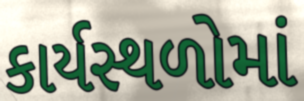
કાર્યસ્થળોમાં